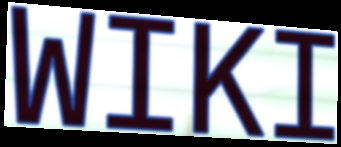
WIKI